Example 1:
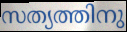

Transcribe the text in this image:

സത്യത്തിനു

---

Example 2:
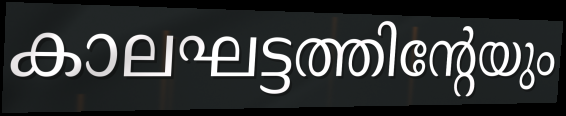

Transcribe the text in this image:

കാലഘട്ടത്തിന്റേയും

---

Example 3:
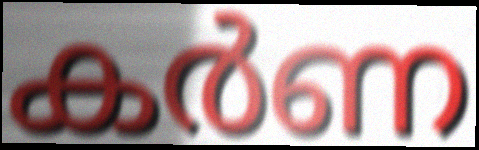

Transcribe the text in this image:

കർണ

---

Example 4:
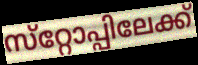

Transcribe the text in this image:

സ്‌റ്റോപ്പിലേക്ക്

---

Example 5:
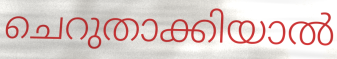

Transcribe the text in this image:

ചെറുതാക്കിയാൽ